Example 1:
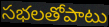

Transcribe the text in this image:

సభలతోపాటు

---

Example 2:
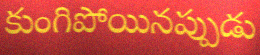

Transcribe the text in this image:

కుంగిపోయినప్పుడు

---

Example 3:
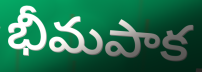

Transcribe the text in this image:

భీమపాక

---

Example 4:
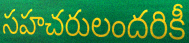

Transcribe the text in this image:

సహచరులందరికీ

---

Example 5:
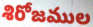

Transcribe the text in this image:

శిరోజముల